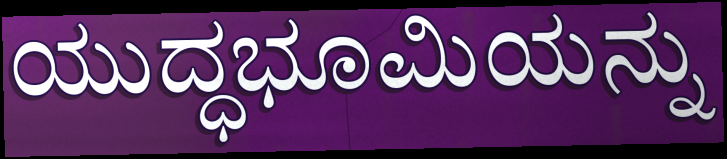
ಯುದ್ಧಭೂಮಿಯನ್ನು